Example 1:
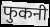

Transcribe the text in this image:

फुकनी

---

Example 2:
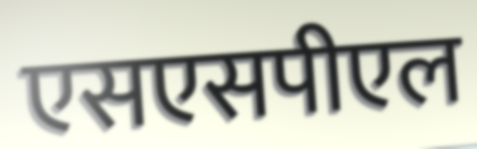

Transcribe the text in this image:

एसएसपीएल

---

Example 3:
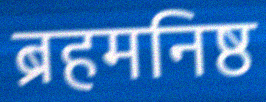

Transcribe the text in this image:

ब्रहमनिष्ठ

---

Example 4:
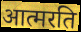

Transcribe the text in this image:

आत्मरति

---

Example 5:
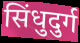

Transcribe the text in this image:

सिंधुदुर्ग